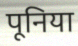
पूनिया